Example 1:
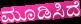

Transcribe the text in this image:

ಮೂಡಿಸಿದೆ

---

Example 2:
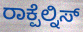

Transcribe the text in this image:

ರಾಕ್ಪೆಲ್ನಿಸ್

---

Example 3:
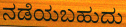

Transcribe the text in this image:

ನಡೆಯಬಹುದು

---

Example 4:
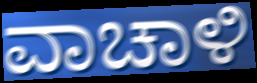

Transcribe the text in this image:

ವಾಚಾಳಿ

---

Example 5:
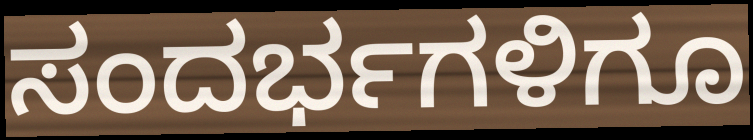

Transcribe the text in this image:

ಸಂದರ್ಭಗಳಿಗೂ